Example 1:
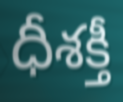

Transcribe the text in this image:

ధీశక్తీ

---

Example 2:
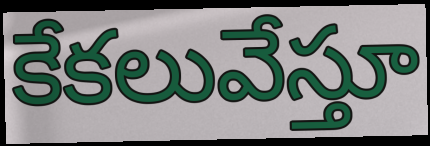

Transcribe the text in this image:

కేకలువేస్తూ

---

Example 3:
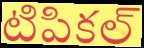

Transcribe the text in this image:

టిపికల్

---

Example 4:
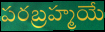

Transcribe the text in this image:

పరబ్రహ్మయే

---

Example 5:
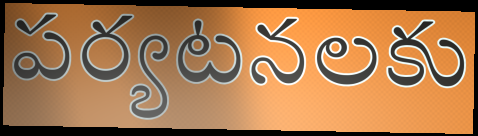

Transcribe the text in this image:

పర్యటనలకు